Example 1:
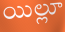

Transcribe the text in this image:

యిల్లూ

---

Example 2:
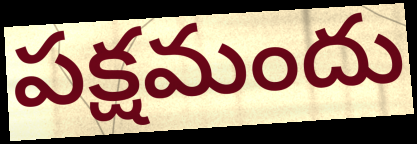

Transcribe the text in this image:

పక్షమందు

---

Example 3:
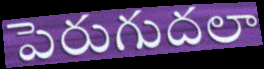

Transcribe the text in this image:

పెరుగుదలా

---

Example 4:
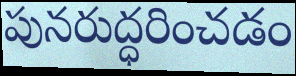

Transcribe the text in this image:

పునరుద్ధరించడం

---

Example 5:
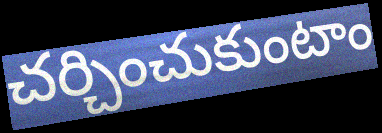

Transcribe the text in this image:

చర్చించుకుంటాం